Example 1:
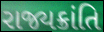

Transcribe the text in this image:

રાજ્યક્રાંતિ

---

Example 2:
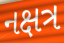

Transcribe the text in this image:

નક્ષત્ર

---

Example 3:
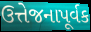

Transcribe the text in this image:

ઉત્તેજનાપૂર્વક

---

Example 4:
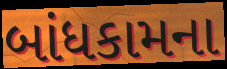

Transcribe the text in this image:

બાંધકામના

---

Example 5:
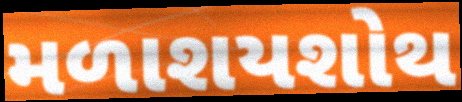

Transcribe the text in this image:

મળાશયશોથ